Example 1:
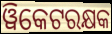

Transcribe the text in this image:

ୱିକେଟରକ୍ଷକ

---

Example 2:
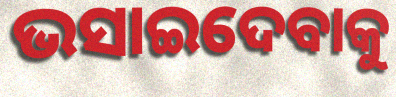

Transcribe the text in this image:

ଭସାଇଦେବାକୁ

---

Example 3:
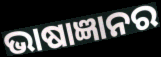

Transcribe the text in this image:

ଭାଷାଜ୍ଞାନର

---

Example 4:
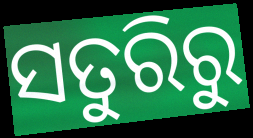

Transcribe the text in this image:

ସତୁରିରୁ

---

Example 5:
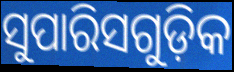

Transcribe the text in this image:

ସୁପାରିସଗୁଡ଼ିକ